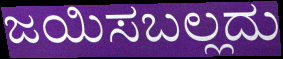
ಜಯಿಸಬಲ್ಲದು